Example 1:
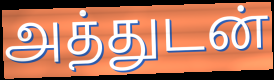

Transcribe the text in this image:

அத்துடன்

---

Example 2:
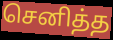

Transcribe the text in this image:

செனித்த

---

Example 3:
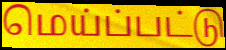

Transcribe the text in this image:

மெய்ப்பட்டு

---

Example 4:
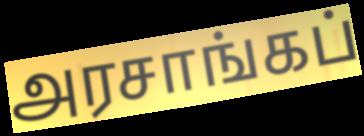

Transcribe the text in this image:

அரசாங்கப்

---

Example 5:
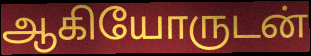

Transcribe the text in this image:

ஆகியோருடன்